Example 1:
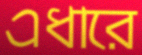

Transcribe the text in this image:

এধারে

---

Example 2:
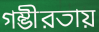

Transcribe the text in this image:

গম্ভীরতায়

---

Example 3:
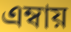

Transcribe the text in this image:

এম্বায়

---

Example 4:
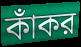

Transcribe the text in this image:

কাঁকর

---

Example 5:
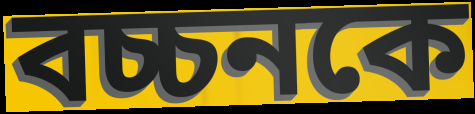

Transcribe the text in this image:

বচ্চনকে